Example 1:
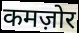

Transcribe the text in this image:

कमज़ोर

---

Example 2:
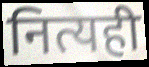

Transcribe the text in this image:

नित्यही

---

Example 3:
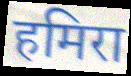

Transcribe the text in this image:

हमिरा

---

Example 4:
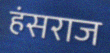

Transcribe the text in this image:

हंसराज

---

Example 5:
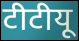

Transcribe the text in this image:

टीटीयू